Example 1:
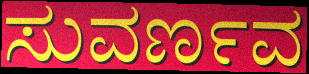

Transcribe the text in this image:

ಸುವರ್ಣವ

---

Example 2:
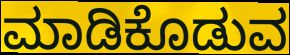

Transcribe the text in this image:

ಮಾಡಿಕೊಡುವ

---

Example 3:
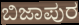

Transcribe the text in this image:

ಬಿಜಾಪುರ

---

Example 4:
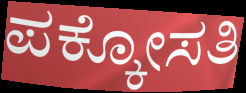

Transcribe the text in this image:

ಪಕ್ಕೋಸತಿ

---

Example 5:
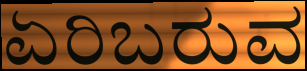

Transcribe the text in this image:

ಏರಿಬರುವ